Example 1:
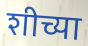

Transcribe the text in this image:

शीच्या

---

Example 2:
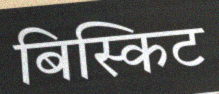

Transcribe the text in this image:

बिस्किट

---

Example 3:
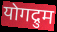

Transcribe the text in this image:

योगद्रुम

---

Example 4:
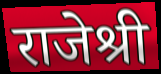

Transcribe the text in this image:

राजेश्री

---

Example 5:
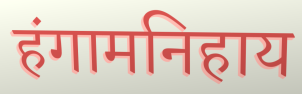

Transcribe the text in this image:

हंगामनिहाय